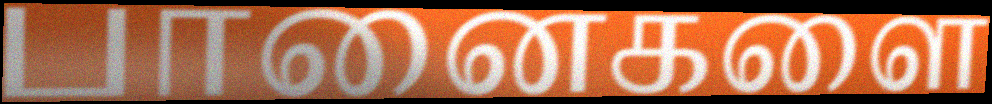
பானைகளை